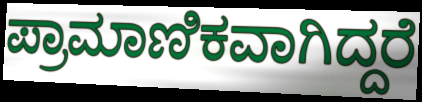
ಪ್ರಾಮಾಣಿಕವಾಗಿದ್ದರೆ